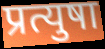
प्रत्युषा